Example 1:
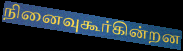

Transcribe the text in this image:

நினைவுகூர்கின்றன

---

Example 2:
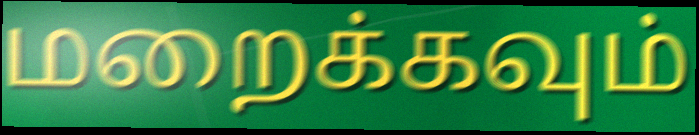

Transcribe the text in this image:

மறைக்கவும்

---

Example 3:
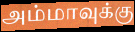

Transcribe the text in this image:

அம்மாவுக்கு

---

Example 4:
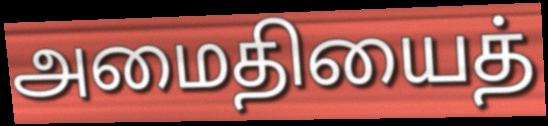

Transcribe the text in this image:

அமைதியைத்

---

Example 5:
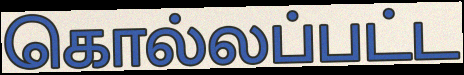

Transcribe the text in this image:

கொல்லப்பட்ட